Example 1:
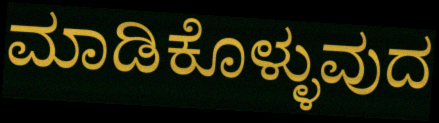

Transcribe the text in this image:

ಮಾಡಿಕೊಳ್ಳುವುದ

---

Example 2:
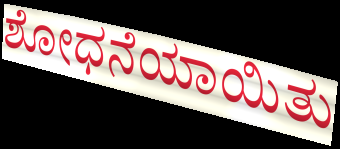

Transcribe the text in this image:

ಶೋಧನೆಯಾಯಿತು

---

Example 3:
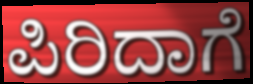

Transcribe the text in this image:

ಪಿರಿದಾಗೆ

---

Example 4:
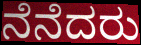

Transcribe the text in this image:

ನೆನೆದರು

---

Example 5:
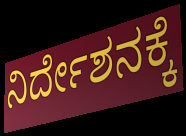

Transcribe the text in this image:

ನಿರ್ದೇಶನಕ್ಕೆ